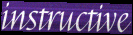
instructive